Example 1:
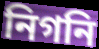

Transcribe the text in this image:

নিগনি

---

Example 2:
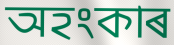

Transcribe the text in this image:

অহংকাৰ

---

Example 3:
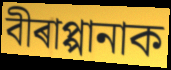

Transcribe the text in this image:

বীৰাপ্পানাক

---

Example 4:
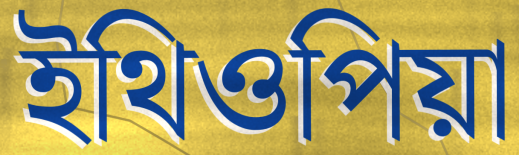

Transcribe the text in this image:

ইথিওপিয়া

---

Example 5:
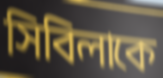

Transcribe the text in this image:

সিবিলাকে